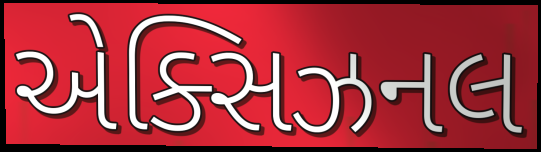
એક્સિઝનલ